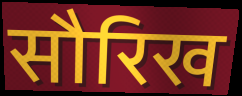
सौरिख